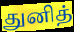
துனித்